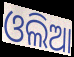
ଓଲିଆ